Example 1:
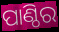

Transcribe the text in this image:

ପାଣ୍ଠିର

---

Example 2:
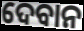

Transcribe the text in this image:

ଦେବାନ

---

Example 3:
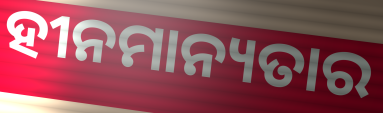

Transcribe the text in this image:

ହୀନମାନ୍ୟତାର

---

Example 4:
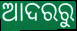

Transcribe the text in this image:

ଆଦରରୁ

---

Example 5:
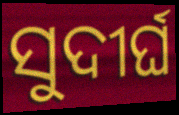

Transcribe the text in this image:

ସୁଦୀର୍ଘ